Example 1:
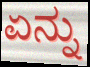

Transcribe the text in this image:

ಏನ್ನು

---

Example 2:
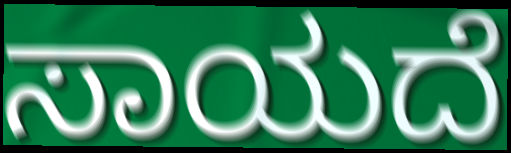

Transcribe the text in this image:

ಸಾಯದೆ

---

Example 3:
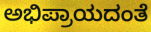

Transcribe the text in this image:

ಅಭಿಪ್ರಾಯದಂತೆ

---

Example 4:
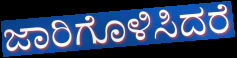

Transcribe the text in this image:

ಜಾರಿಗೊಳಿಸಿದರೆ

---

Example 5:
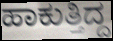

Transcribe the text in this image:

ಹಾಕುತ್ತಿದ್ದ